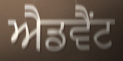
ਐਡਵੈਂਟ